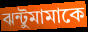
ঝন্টুমামাকে